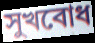
সুখবোধ